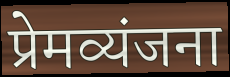
प्रेमव्यंजना